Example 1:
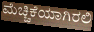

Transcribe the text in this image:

ಮೆಚ್ಚಿಕೆಯಾಗಿರಲಿ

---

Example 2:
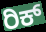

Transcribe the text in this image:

ರಿಕ್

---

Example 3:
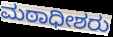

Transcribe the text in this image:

ಮಠಾಧೀಶರು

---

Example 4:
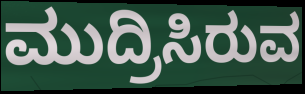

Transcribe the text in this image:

ಮುದ್ರಿಸಿರುವ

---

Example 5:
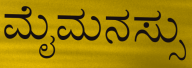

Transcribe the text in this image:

ಮೈಮನಸ್ಸು